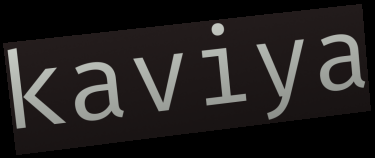
kaviya